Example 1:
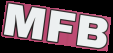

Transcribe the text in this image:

MFB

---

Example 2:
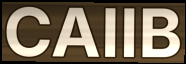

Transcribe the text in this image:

CAIIB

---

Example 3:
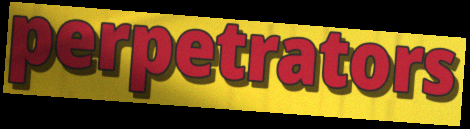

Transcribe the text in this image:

perpetrators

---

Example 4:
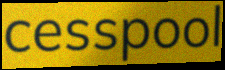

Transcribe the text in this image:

cesspool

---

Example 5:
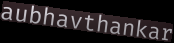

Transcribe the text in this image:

aubhavthankar